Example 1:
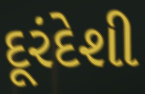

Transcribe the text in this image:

દૂરંદેશી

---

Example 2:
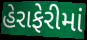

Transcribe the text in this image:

હેરાફેરીમાં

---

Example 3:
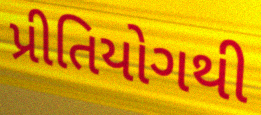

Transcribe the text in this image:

પ્રીતિયોગથી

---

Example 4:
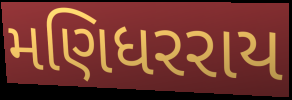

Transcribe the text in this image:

મણિધરરાય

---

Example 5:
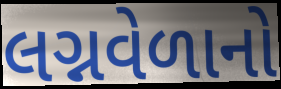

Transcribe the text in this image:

લગ્નવેળાનો